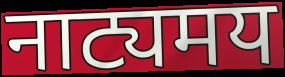
नाट्यमय